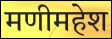
मणीमहेश